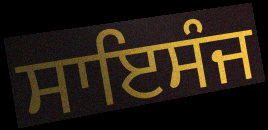
ਸਾਇਸੰਜ